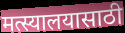
मत्स्यालयासाठी